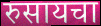
रुसायचा